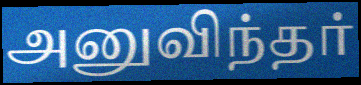
அனுவிந்தர்